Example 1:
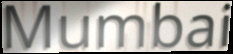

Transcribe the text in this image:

Mumbai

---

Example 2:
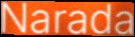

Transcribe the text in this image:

Narada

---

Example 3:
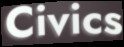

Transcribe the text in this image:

Civics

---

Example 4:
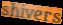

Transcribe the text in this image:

shivers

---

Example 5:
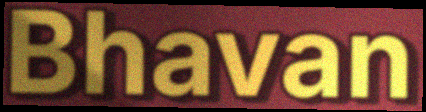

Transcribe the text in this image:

Bhavan